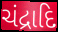
ચંદ્રાદિ